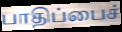
பாதிப்பைச்